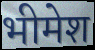
भीमेश